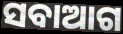
ସବାଆଗ